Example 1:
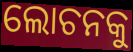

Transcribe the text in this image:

ଲୋଚନକୁ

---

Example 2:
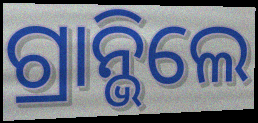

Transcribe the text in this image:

ଗ୍ରାନ୍ଭିଲେ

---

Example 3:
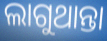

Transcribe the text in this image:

ଲାଗୁଥାନ୍ତା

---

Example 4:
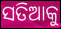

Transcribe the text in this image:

ସତିଆକୁ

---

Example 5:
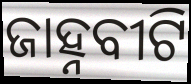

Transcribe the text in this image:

ଜାହ୍ନବୀଟି